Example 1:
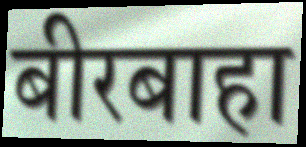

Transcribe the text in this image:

बीरबाहा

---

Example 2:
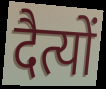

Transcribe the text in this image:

दैत्यों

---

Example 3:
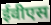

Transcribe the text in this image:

ईवीएस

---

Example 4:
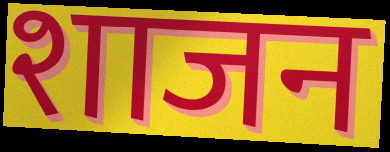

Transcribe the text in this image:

शाजन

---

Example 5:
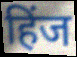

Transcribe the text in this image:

हिंज